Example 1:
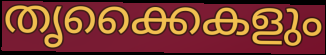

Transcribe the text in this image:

തൃക്കൈകളും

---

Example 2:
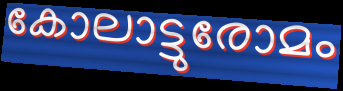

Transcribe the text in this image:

കോലാട്ടുരോമം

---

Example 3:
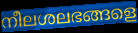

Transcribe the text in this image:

നീലശലഭങ്ങളെ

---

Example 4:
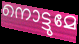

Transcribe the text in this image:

നൊട്ടുമേ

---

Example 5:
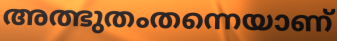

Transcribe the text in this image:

അത്ഭുതംതന്നെയാണ്